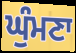
ਘੁੰਮਣਾ